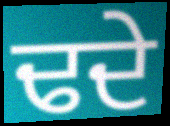
ਢਦੇ